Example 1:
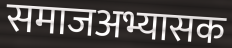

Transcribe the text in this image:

समाजअभ्यासक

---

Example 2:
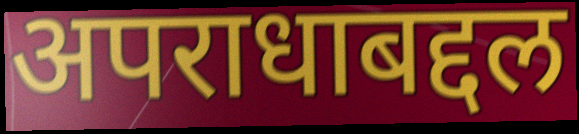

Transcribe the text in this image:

अपराधाबद्दल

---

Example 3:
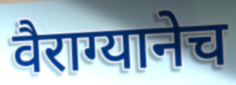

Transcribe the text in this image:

वैराग्यानेच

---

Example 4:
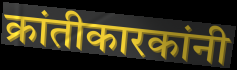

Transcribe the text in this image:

क्रांतीकारकांनी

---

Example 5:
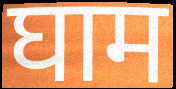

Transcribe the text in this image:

घाम